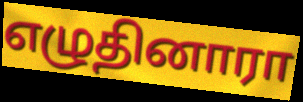
எழுதினாரா